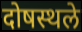
दोषस्थले